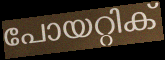
പോയറ്റിക്